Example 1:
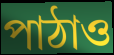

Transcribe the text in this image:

পাঠাও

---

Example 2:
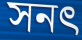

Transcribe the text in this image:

সনৎ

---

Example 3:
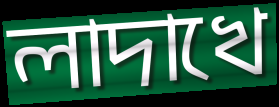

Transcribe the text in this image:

লাদাখে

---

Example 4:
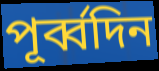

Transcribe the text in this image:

পূর্ব্বদিন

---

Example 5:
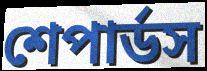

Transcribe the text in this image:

শেপার্ডস